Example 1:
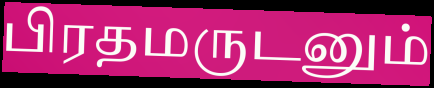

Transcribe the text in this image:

பிரதமருடனும்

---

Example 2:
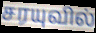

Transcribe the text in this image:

சரயுவில்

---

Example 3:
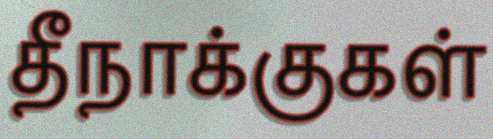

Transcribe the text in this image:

தீநாக்குகள்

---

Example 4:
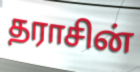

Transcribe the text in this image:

தராசின்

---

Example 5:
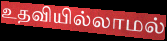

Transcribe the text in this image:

உதவியில்லாமல்